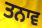
ਤਨਾਵ